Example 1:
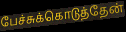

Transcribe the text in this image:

பேச்சுக்கொடுத்தேன்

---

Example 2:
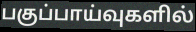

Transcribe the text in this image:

பகுப்பாய்வுகளில்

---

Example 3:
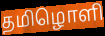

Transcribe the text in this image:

தமிழொளி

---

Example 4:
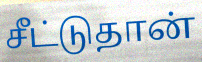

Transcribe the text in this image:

சீட்டுதான்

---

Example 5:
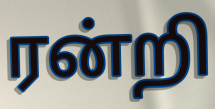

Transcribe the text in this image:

ரன்றி